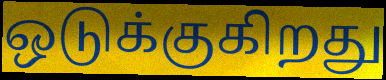
ஒடுக்குகிறது